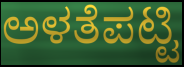
ಅಳತೆಪಟ್ಟಿ